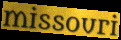
missouri